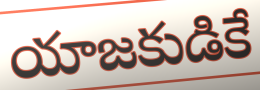
యాజకుడికే